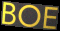
BOE